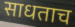
साधताच